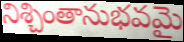
నిశ్చింతానుభవమై